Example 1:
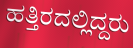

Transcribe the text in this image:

ಹತ್ತಿರದಲ್ಲಿದ್ದರು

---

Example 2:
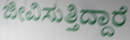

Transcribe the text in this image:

ಜೀವಿಸುತ್ತಿದ್ದಾರೆ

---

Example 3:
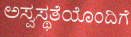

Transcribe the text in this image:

ಅಸ್ವಸ್ಥತೆಯೊಂದಿಗೆ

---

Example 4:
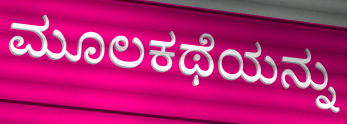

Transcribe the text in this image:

ಮೂಲಕಥೆಯನ್ನು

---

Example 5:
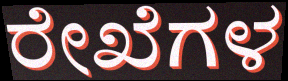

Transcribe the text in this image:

ರೇಖೆಗಳ